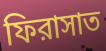
ফিরাসাত